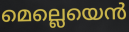
മെല്ലെയെൻ